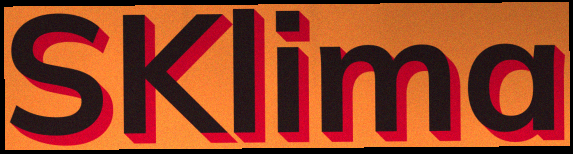
SKlima